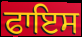
ਫਾਇਸ